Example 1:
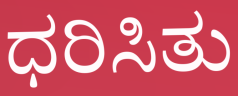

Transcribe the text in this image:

ಧರಿಸಿತು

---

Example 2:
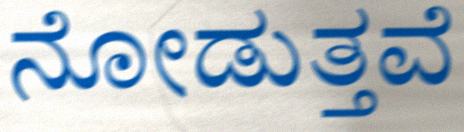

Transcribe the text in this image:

ನೋಡುತ್ತವೆ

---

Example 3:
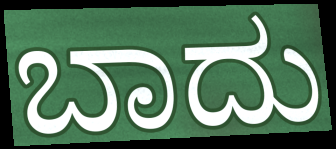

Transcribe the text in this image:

ಬಾದು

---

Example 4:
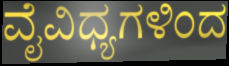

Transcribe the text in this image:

ವೈವಿಧ್ಯಗಳಿಂದ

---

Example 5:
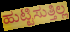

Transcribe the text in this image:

ಹುಟ್ಟಿಸುತ್ತಿಲ್ಲ